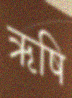
ऋषि